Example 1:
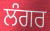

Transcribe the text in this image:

ਲੰਗਰ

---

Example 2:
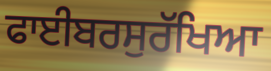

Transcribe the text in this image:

ਫਾਈਬਰਸੁਰੱਖਿਆ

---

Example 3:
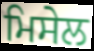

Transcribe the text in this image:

ਮਿਸੇਲ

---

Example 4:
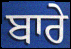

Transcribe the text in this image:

ਬਾਰੇ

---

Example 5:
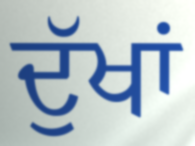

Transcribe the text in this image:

ਦੁੱਖਾਂ